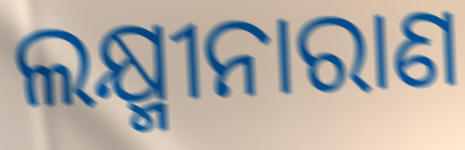
ଲକ୍ଷ୍ମୀନାରାଣ